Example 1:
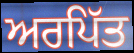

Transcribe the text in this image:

ਅਰਪਿੱਤ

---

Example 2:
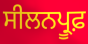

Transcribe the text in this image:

ਸੀਲਨਪ੍ਰੂਫ਼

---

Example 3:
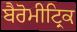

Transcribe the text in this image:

ਬੈਰੋਮੀਟ੍ਰਿਕ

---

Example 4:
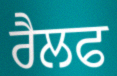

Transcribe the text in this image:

ਰੈਲਫ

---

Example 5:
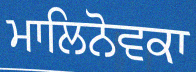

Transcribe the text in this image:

ਮਾਲਿਨੋਵਕਾ